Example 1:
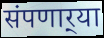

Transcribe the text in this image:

संपणार्या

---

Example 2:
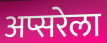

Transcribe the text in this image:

अप्सरेला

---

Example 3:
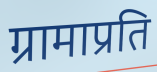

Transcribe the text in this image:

ग्रामाप्रति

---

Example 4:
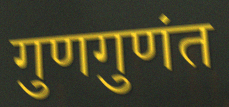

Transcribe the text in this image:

गुणगुणंत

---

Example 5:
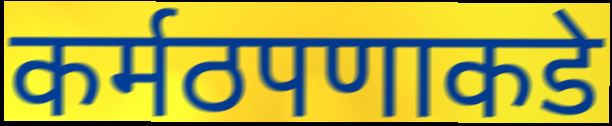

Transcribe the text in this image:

कर्मठपणाकडे